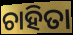
ଚାହିତା